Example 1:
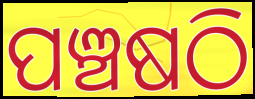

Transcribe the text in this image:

ପଞ୍ଚଷଠି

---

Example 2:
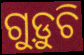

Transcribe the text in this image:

ଗୁଡ଼ୁଚି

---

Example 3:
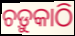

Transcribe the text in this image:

ଚଡ଼ୁକାଠି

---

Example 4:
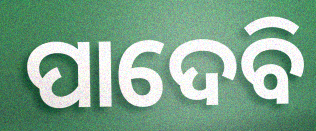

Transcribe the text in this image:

ପାଦେବି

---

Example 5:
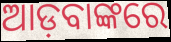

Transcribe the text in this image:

ଆଡ଼ବାଙ୍କରେ